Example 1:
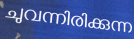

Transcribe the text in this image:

ചുവന്നിരിക്കുന്ന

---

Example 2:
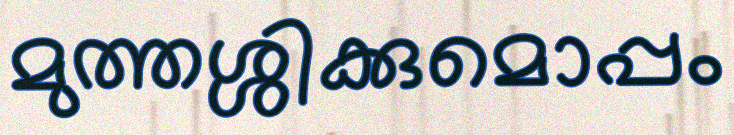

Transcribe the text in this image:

മുത്തശ്ശിക്കുമൊപ്പം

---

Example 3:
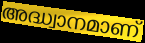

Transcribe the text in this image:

അദ്ധ്വാനമാണ്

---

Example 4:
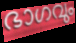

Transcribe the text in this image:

ഭാഗവും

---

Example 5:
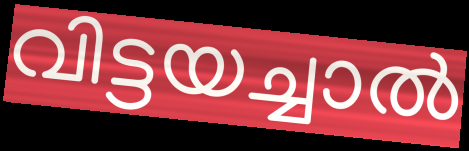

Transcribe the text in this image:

വിട്ടയച്ചാൽ